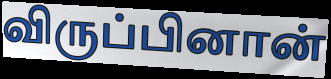
விருப்பினான்